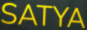
SATYA